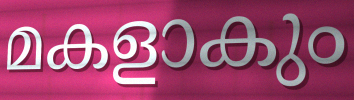
മകളാകും